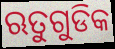
ଋତୁଗୁଡିକ